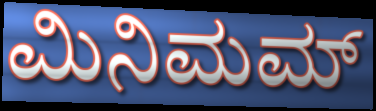
ಮಿನಿಮಮ್